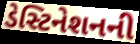
ડેસ્ટિનેશનની